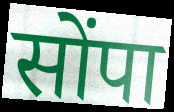
सोंपा